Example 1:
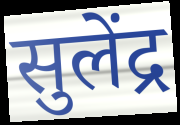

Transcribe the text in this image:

सुलेंद्र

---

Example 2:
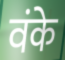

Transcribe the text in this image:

वंके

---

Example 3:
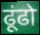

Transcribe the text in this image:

ढूंढो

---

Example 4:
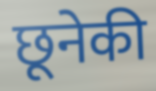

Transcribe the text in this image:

छूनेकी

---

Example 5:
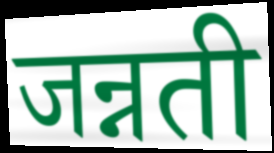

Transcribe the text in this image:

जन्नती